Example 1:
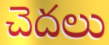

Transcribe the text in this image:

చెదలు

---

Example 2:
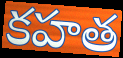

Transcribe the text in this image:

కహత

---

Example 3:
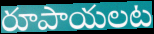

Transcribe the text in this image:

రూపాయలట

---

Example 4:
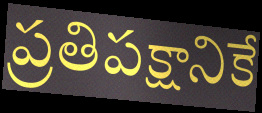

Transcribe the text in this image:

ప్రతిపక్షానికే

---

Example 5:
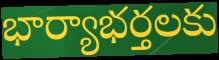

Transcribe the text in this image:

భార్యాభర్తలకు